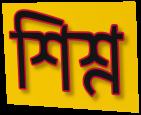
শিশ্ন